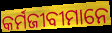
କର୍ମଜୀବୀମାନେ